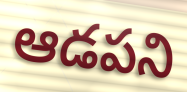
ఆడపని